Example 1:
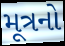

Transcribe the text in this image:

મૂત્રનો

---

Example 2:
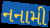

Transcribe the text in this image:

નનામી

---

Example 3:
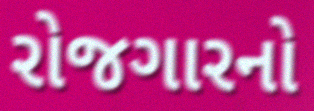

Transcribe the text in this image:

રોજગારનો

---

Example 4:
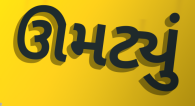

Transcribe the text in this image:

ઊમટ્યું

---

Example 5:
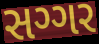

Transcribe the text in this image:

સગ્ગર